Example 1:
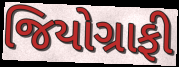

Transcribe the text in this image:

જિયોગ્રાફી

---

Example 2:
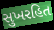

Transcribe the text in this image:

સુખરહિત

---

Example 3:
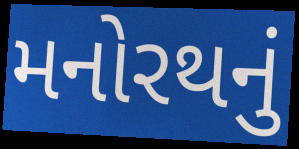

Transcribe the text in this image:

મનોરથનું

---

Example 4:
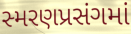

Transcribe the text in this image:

સ્મરણપ્રસંગમાં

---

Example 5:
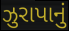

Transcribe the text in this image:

ઝુરાપાનું